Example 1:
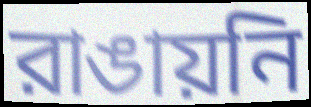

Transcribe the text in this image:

রাঙায়নি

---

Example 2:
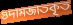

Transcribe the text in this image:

গুদামজাতকৃত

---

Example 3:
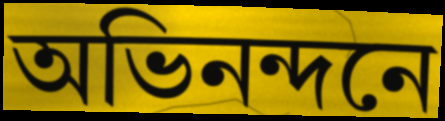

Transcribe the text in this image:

অভিনন্দনে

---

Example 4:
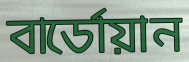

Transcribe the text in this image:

বার্ডোয়ান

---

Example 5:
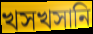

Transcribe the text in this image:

খসখসানি